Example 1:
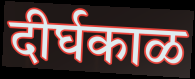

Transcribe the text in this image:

दीर्घकाळ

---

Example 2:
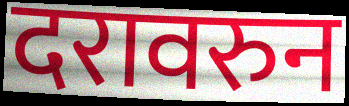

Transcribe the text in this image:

दरावरुन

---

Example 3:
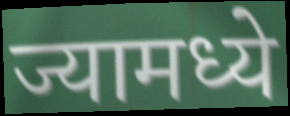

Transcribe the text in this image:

ज्यामध्ये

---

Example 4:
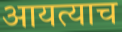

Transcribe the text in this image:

आयत्याच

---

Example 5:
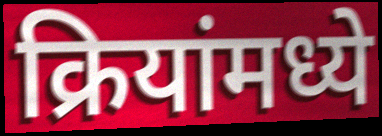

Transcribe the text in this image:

क्रियांमध्ये